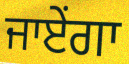
ਜਾਏਂਗਾ